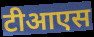
टीआएस